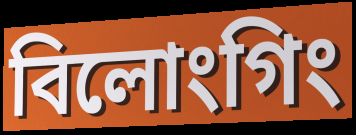
বিলোংগিং